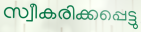
സ്വീകരിക്കപ്പെട്ടു